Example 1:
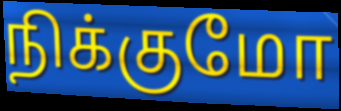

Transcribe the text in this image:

நிக்குமோ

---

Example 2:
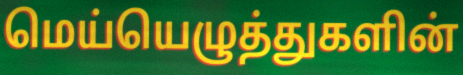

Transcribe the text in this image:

மெய்யெழுத்துகளின்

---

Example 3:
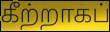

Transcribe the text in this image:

கீற்றாகப்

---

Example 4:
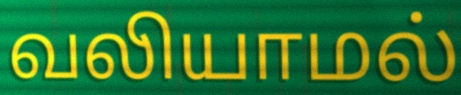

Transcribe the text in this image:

வலியாமல்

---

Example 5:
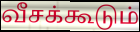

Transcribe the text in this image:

வீசக்கூடும்